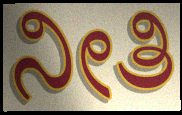
ನೀತಿ